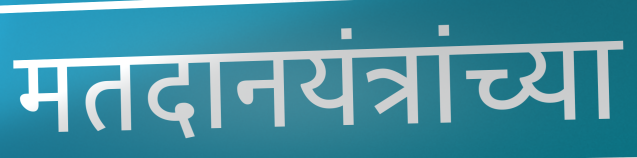
मतदानयंत्रांच्या